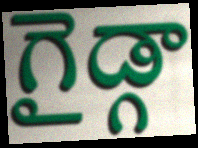
గైడ్గా